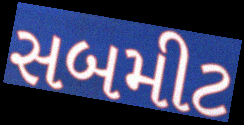
સબમીટ